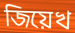
জিয়েখ